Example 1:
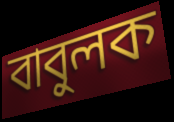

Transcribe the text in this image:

বাবুলক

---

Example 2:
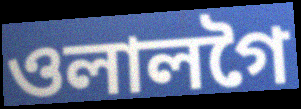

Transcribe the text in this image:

ওলালগৈ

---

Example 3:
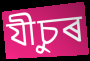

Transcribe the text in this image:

যীচুৰ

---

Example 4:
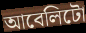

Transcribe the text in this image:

আবেলিটো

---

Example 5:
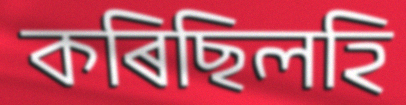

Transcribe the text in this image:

কৰিছিলহি